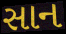
સાન